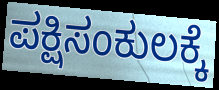
ಪಕ್ಷಿಸಂಕುಲಕ್ಕೆ